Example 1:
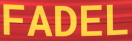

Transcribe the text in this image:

FADEL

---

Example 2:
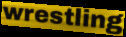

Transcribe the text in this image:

wrestling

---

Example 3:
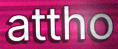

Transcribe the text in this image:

attho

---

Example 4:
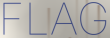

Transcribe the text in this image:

FLAG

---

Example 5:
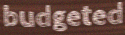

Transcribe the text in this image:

budgeted